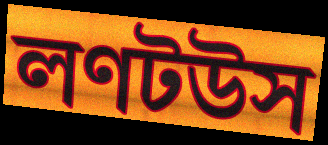
লণটউস